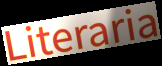
Literaria